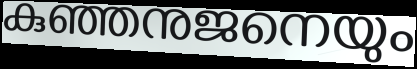
കുഞ്ഞനുജനെയും